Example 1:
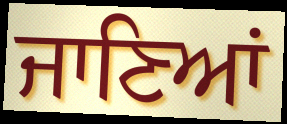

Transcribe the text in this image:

ਜਾਣਿਆਂ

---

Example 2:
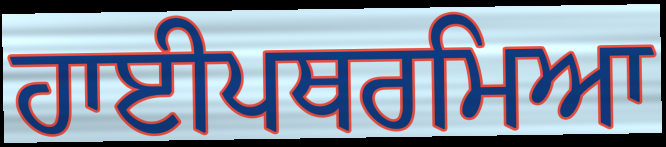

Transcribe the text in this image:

ਹਾਈਪਥਰਮਿਆ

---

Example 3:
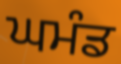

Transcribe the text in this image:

ਘਮੰਡ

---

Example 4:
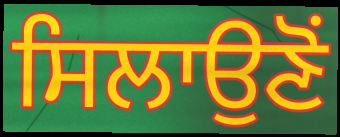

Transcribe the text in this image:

ਸਿਲਾਉਣੋਂ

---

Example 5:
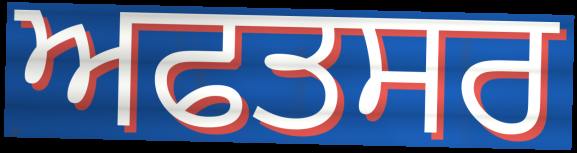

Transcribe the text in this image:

ਅਫਤਸਰ